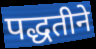
पद्धतीने